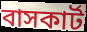
বাসকার্ট